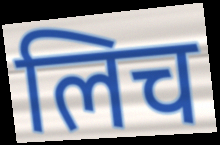
लिच